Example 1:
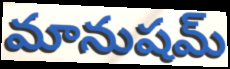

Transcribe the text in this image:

మానుషమ్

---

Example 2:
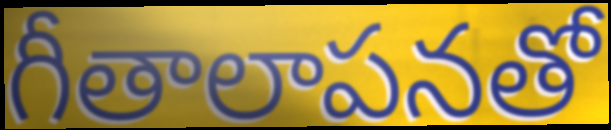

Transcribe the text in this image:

గీతాలాపనతో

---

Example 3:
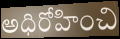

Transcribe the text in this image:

అధిరోహించి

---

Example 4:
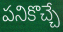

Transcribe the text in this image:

పనికొచ్చే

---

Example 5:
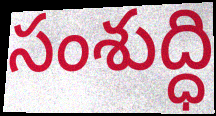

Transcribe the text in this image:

సంశుద్ధి